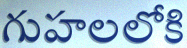
గుహలలోకి